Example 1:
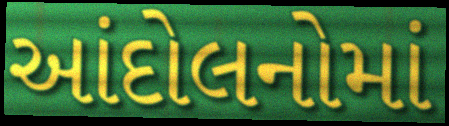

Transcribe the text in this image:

આંદોલનોમાં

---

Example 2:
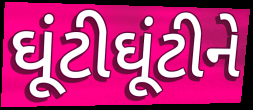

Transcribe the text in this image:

ઘૂંટીઘૂંટીને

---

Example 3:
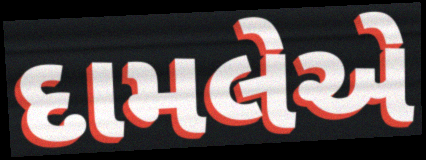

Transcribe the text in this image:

દામલેએ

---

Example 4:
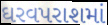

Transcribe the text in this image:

ઘરવપરાશમાં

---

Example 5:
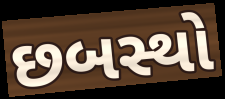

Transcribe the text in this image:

છબસ્થો